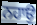
ਨਹਾਉ